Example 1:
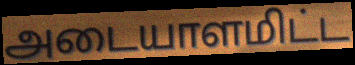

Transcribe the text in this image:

அடையாளமிட்ட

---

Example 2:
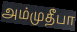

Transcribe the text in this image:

அம்முதீபா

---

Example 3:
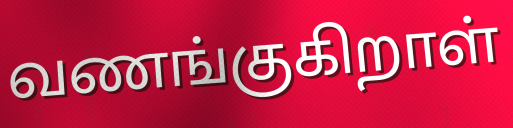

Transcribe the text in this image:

வணங்குகிறாள்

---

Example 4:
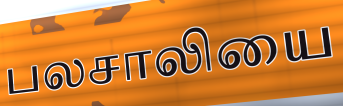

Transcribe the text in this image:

பலசாலியை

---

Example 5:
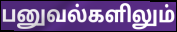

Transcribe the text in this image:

பனுவல்களிலும்